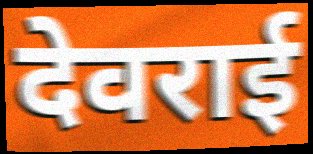
देवराई